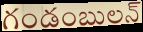
గండంబులన్